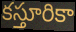
కస్తూరికా